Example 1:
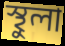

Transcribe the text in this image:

স্থুলা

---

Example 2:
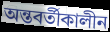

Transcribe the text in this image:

অন্তবর্তীকালীন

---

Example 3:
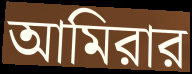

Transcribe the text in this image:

আমিরার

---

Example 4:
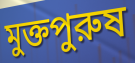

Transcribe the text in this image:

মুক্তপুরুষ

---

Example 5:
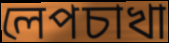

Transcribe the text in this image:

লেপচাখা